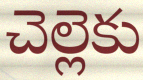
చెల్లెకు